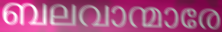
ബലവാന്മാരേ